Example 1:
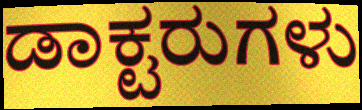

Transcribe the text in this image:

ಡಾಕ್ಟರುಗಳು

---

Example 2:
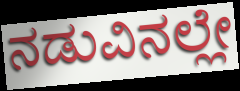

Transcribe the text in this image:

ನಡುವಿನಲ್ಲೇ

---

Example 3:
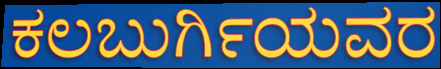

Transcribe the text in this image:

ಕಲಬುರ್ಗಿಯವರ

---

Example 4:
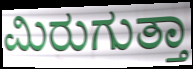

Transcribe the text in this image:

ಮಿರುಗುತ್ತಾ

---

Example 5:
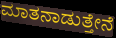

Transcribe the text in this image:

ಮಾತನಾಡುತ್ತೇನೆ